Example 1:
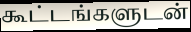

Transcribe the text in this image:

கூட்டங்களுடன்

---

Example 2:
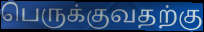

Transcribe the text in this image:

பெருக்குவதற்கு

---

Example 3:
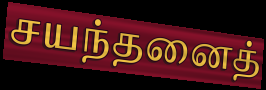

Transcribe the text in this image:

சயந்தனைத்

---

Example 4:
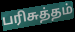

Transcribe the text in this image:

பரிசுத்தம்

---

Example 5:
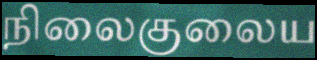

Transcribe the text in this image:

நிலைகுலைய